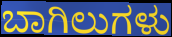
ಬಾಗಿಲುಗಳು